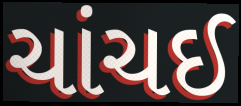
ચાંચઈ